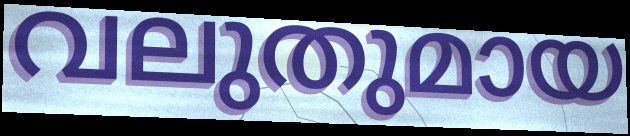
വലുതുമായ